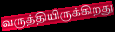
வருத்தியிருக்கிறது